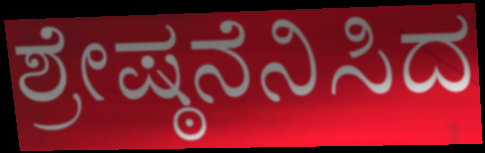
ಶ್ರೇಷ್ಠನೆನಿಸಿದ